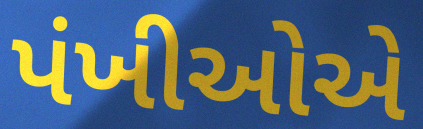
પંખીઓએ